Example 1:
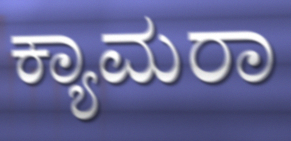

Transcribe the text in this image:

ಕ್ಯಾಮರಾ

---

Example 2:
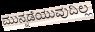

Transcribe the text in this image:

ಮುನ್ನಡೆಯುವುದಿಲ್ಲ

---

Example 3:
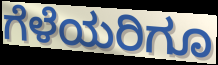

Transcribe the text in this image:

ಗೆಳೆಯರಿಗೂ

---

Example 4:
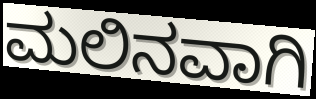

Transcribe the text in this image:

ಮಲಿನವಾಗಿ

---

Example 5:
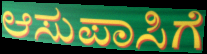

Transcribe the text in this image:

ಆಸುಪಾಸಿಗೆ